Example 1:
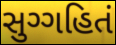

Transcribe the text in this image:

સુગ્ગહિતં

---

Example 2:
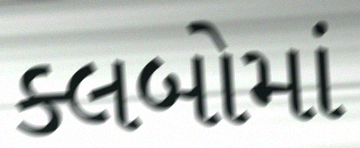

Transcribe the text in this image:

ક્લબોમાં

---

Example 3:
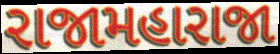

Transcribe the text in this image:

રાજામહારાજા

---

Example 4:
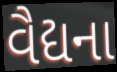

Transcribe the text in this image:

વૈદ્યના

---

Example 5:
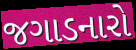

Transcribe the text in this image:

જગાડનારો